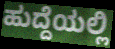
ಹುದ್ದೆಯಲ್ಲಿ